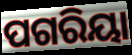
ପଗରିୟା